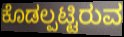
ಕೊಡಲ್ಪಟ್ಟಿರುವ